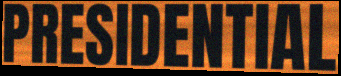
PRESIDENTIAL